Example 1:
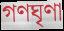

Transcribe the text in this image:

গণঘৃণা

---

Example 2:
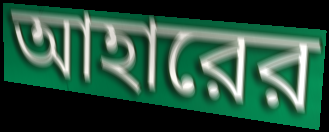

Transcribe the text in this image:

আহারের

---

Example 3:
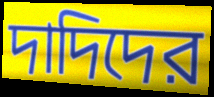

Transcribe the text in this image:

দাদিদের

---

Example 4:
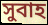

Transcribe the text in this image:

সুবাহ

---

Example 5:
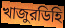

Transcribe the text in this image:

খাজুরডিহি